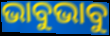
ଭାବୁଭାବୁ